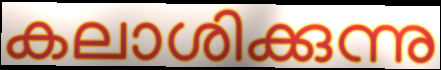
കലാശിക്കുന്നു